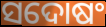
ସଦୋଷଂ